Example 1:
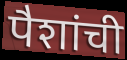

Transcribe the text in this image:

पैशांची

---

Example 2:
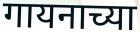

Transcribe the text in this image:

गायनाच्या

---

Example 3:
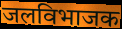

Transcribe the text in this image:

जलविभाजक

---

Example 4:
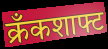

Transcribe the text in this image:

क्रँकशाफ्ट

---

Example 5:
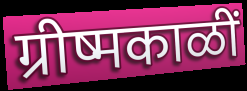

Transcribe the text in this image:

ग्रीष्मकाळीं